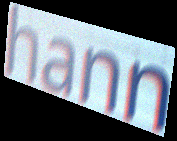
hann